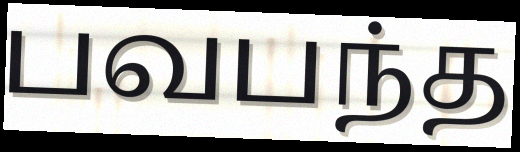
பவபந்த